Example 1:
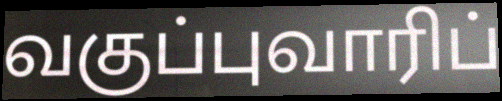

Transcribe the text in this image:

வகுப்புவாரிப்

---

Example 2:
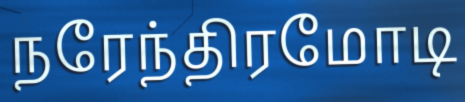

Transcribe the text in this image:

நரேந்திரமோடி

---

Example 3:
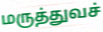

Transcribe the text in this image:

மருத்துவச்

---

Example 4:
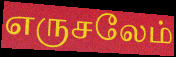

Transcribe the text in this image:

எருசலேம்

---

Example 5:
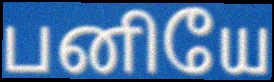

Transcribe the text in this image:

பனியே